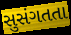
સુસંગતતા